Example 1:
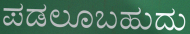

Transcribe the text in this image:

ಪಡಲೂಬಹುದು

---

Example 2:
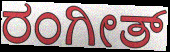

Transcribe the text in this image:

ರಂಗೀತ್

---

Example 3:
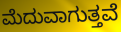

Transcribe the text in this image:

ಮೆದುವಾಗುತ್ತವೆ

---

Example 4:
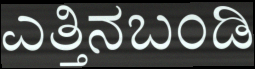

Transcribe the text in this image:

ಎತ್ತಿನಬಂಡಿ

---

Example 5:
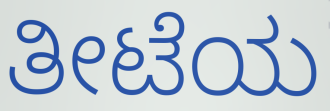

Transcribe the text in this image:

ತೀಟೆಯ